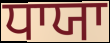
ਧਾਯਾ